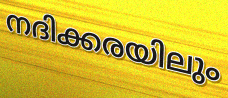
നദിക്കരയിലും